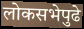
लोकसभेपुढे